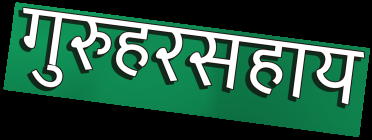
गुरुहरसहाय